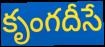
కృంగదీసే